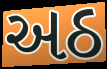
અઠ